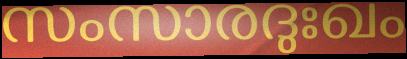
സംസാരദുഃഖം